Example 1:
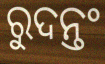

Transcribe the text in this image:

ରୁଦନ୍ତଂ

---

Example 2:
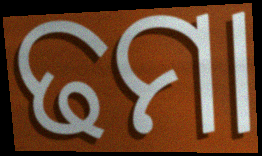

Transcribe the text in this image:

ଢମା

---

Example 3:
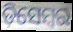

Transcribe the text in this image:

ଡ଼ିସେମ୍ୱର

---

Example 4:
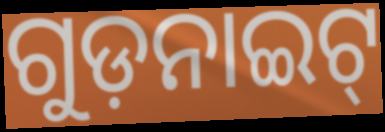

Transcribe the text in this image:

ଗୁଡ଼ନାଇଟ୍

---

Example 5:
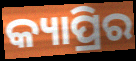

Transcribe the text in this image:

କ୍ୟାପ୍ରିର